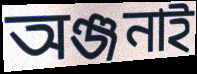
অঞ্জনাই